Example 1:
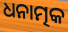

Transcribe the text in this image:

ଧନାତ୍ମକ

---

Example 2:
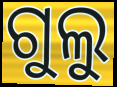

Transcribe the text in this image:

ଗୁଲୁ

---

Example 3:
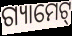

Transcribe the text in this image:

ଗ୍ୟାମେଟ୍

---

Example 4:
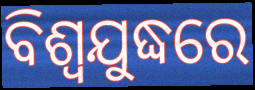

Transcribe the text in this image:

ବିଶ୍ବଯୁଦ୍ଧରେ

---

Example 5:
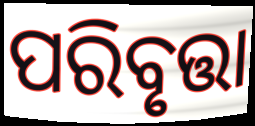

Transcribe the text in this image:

ପରିବୃତ୍ତା